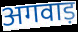
अगवाड़